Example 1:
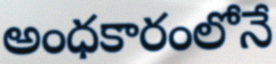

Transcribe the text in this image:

అంధకారంలోనే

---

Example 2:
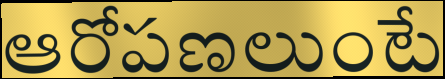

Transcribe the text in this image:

ఆరోపణలుంటే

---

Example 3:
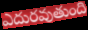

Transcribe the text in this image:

ఎదురవుతుంది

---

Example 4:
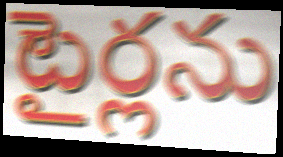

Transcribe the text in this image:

టైర్లను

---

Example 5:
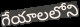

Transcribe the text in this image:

గేయాలలోని